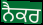
ਨੈਕਰ